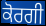
ਕੋਰਗੀ